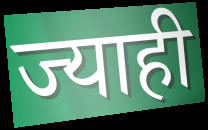
ज्याही